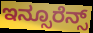
ಇನ್ಸೂರೆನ್ಸ್